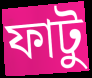
ফাটু